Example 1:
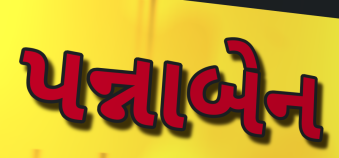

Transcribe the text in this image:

પન્નાબેન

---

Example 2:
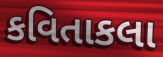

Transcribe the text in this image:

કવિતાકલા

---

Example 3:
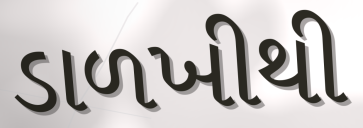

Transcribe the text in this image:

ડાળખીથી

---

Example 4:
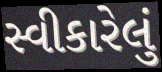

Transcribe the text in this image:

સ્વીકારેલું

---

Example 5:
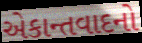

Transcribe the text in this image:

એકાન્તવાદનો